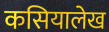
कसियालेख